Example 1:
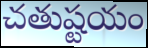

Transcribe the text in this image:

చతుష్టయం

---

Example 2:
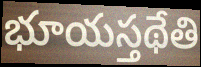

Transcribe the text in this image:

భూయస్తథేతి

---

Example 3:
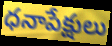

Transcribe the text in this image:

ధనాపేక్షులు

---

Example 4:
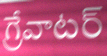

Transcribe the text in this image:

గ్రేవాటర్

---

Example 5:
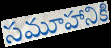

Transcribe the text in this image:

సమూహానికి